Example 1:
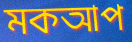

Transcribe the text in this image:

মকআপ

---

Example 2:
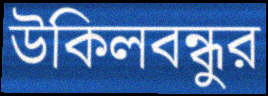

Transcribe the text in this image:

উকিলবন্ধুর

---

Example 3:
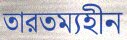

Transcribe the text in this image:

তারতম্যহীন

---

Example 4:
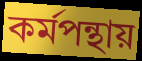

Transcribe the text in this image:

কর্মপন্থায়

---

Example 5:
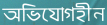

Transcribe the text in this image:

অভিযোগহীন